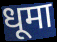
धूमा